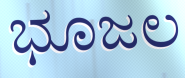
ಭೂಜಲ